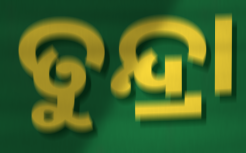
ତୁନ୍ଦ୍ରା